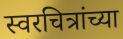
स्वरचित्रांच्या